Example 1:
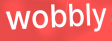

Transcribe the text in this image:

wobbly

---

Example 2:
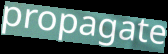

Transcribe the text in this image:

propagate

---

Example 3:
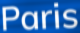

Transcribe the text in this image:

Paris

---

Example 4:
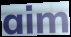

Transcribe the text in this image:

aim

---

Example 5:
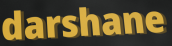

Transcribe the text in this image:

darshane